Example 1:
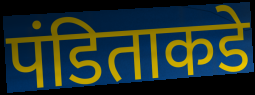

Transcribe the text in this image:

पंडिताकडे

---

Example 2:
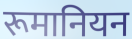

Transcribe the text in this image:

रूमानियन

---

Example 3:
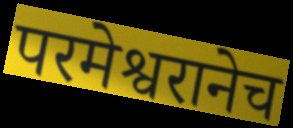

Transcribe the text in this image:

परमेश्वरानेच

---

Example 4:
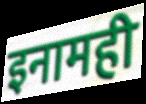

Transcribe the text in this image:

इनामही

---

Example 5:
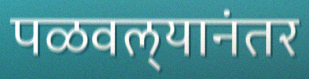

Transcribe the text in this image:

पळवल्यानंतर